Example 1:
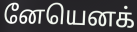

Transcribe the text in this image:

னேயெனக்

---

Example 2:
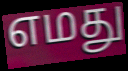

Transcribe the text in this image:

எமது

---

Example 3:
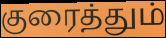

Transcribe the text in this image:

குரைத்தும்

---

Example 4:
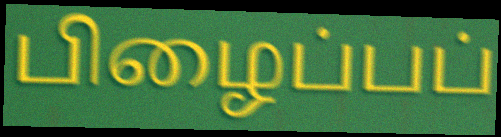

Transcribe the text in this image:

பிழைப்பப்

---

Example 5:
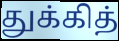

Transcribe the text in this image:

துக்கித்